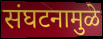
संघटनामुळे